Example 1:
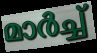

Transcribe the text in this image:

മാർച്ച്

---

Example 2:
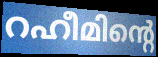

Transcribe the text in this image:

റഹീമിന്റെ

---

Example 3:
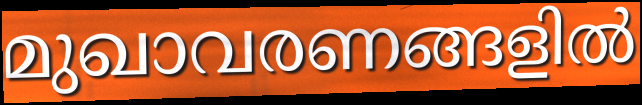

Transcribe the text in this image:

മുഖാവരണങ്ങളിൽ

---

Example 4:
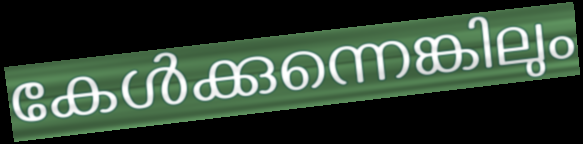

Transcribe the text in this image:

കേൾക്കുന്നെങ്കിലും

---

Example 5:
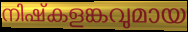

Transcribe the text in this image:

നിഷ്‌കളങ്കവുമായ